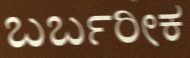
ಬರ್ಬರೀಕ